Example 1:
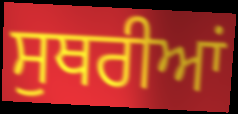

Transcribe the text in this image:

ਸੁਥਰੀਆਂ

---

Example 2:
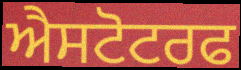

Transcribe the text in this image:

ਐਸਟੋਟਰਫ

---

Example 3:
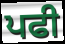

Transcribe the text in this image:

ਪਫੀ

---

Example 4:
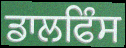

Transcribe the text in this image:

ਡਾਲਫਿੰਸ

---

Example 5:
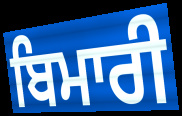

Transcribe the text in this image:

ਬਿਮਾਰੀ